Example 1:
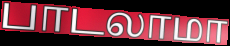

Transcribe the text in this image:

பாடலாமா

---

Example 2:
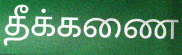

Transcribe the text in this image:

தீக்கணை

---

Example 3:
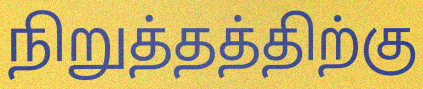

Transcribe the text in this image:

நிறுத்தத்திற்கு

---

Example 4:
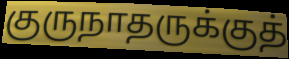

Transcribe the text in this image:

குருநாதருக்குத்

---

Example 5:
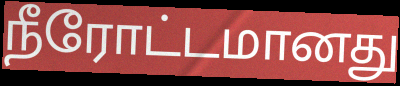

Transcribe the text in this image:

நீரோட்டமானது